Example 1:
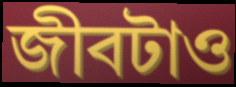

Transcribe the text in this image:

জীবটাও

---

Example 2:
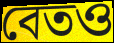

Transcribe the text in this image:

বেতও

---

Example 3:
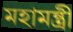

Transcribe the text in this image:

মহামন্ত্রী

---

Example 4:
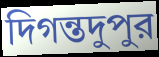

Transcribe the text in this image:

দিগন্তদুপুর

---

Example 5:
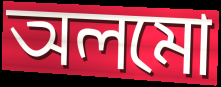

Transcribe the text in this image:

অলমো